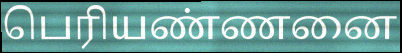
பெரியண்ணனை